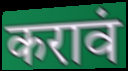
करावं